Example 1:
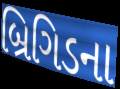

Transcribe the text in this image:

બ્રિગિડના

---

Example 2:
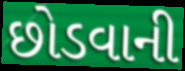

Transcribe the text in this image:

છોડવાની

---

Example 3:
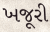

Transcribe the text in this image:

ખજૂરી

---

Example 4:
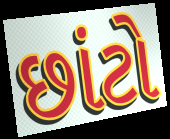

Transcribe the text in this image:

છાંટો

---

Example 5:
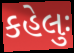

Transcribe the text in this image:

કહેલુઃ